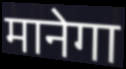
मानेगा